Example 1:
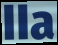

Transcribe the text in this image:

IIa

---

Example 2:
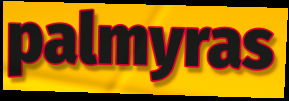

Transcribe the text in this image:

palmyras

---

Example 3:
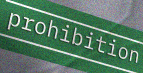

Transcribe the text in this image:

prohibition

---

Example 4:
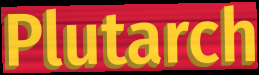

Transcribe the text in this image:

Plutarch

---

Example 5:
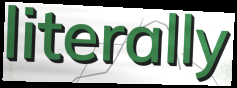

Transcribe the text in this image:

literally